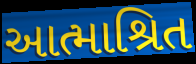
આત્માશ્રિત